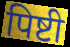
पिष्टी